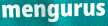
mengurus